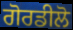
ਗੋਰਡੀਲੋ